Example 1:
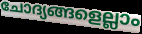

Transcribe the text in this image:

ചോദ്യങ്ങളെല്ലാം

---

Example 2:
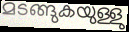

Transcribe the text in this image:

മടങ്ങുകയുള്ളു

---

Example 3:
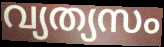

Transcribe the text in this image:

വ്യത്യസം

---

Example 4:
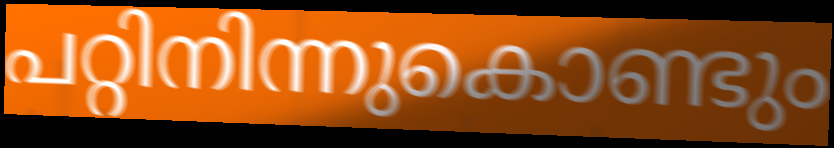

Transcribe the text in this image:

പറ്റിനിന്നുകൊണ്ടും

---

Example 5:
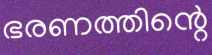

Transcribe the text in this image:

ഭരണത്തിന്റെ